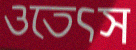
ওতেৎস